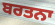
ਬਰਤਨਾ